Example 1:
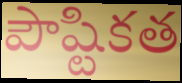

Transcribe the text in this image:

పౌష్టికత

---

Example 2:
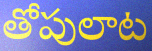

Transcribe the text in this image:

తోపులాట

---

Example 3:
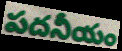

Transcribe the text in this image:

పదనీయం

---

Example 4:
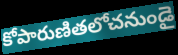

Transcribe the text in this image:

కోపారుణితలోచనుండై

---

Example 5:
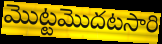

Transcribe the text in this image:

మొట్టమొదటసారి